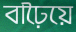
বাঢ়ৈয়ে